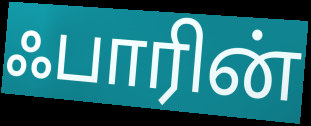
ஃபாரின்